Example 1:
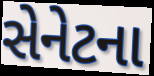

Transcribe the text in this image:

સેનેટના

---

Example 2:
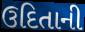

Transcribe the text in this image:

ઉદિતાની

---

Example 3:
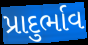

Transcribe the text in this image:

પ્રાદુર્ભાવ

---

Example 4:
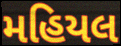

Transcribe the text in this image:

મહિયલ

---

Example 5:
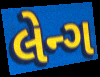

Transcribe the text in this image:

લેન્ગ